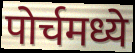
पोर्चमध्ये